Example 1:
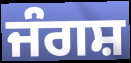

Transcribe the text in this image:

ਜੰਗਸ਼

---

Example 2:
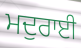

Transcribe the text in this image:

ਮਦੁਰਾਈ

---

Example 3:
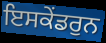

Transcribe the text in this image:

ਇਸਕੇਂਡਰੁਨ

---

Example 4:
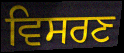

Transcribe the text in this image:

ਵਿਸਰਣ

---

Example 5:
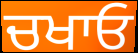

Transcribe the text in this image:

ਚਖਾਓ